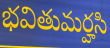
భవితుమర్హసి